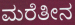
ಮರೆತೀನ